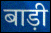
बाड़ी